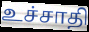
உச்சாதி